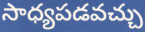
సాధ్యపడవచ్చు